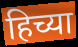
हिच्या